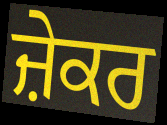
ਜ਼ੇਕਰ